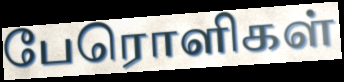
பேரொளிகள்